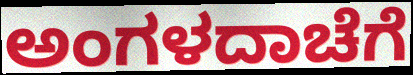
ಅಂಗಳದಾಚೆಗೆ